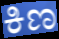
ಕಿಣ